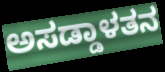
ಅಸಡ್ಡಾಳತನ